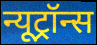
न्यूट्रॉन्स